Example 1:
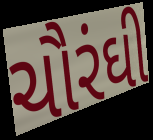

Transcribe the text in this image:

ચૌરંઘી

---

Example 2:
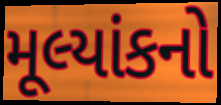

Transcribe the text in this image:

મૂલ્યાંકનો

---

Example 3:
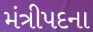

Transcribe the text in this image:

મંત્રીપદના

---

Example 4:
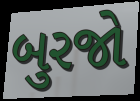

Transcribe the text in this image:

બુરજો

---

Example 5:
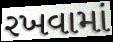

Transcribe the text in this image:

રખવામાં